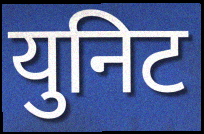
युनिट